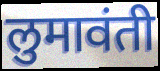
लुमावंती